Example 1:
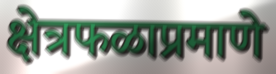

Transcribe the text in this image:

क्षेत्रफळाप्रमाणे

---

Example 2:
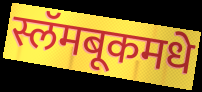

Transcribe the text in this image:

स्लॅमबूकमधे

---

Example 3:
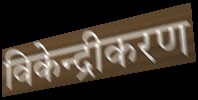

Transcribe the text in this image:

विकेन्द्रीकरण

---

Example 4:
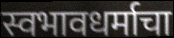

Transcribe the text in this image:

स्वभावधर्माचा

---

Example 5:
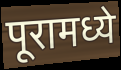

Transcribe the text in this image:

पूरामध्ये